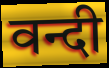
वन्दी